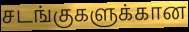
சடங்குகளுக்கான